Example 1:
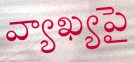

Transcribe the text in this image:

వ్యాఖ్యపై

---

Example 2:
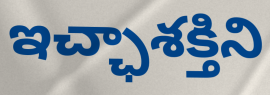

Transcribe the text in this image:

ఇచ్ఛాశక్తిని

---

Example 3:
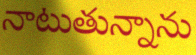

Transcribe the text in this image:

నాటుతున్నాను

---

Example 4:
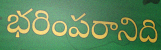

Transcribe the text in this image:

భరింపరానిది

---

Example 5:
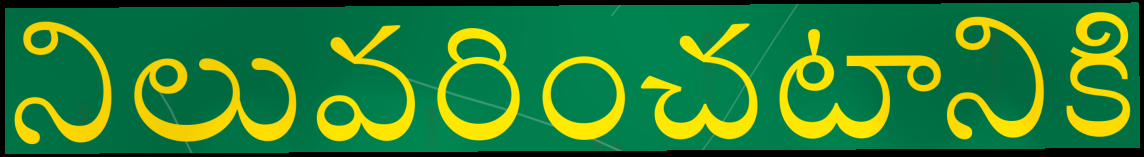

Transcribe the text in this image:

నిలువరించటానికి